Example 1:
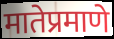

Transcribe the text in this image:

मातेप्रमाणे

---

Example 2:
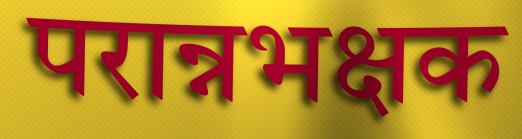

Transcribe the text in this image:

परान्नभक्षक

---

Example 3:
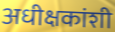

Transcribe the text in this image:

अधीक्षकांशी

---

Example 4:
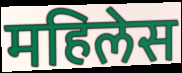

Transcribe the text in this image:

महिलेस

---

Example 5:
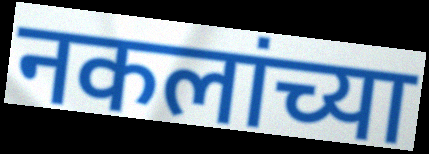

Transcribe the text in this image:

नकलांच्या